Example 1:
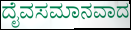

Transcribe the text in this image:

ದೈವಸಮಾನವಾದ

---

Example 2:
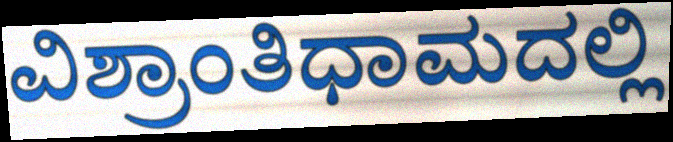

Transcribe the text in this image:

ವಿಶ್ರಾಂತಿಧಾಮದಲ್ಲಿ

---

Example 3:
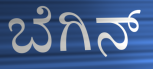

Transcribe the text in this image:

ಬೆಗಿನ್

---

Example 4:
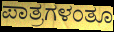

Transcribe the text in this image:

ಪಾತ್ರಗಳಂತೂ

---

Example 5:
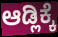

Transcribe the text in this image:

ಆಡ್ಲಿಕ್ಕೆ